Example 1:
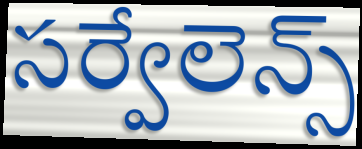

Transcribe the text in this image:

సర్వేలెన్స్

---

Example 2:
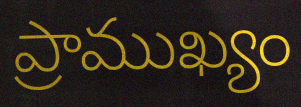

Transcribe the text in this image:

ప్రాముఖ్యం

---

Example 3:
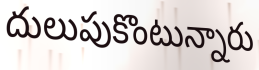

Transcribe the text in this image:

దులుపుకొంటున్నారు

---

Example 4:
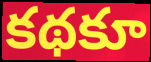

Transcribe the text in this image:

కథకూ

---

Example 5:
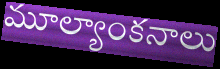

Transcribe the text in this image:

మూల్యాంకనాలు